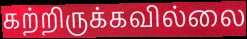
கற்றிருக்கவில்லை